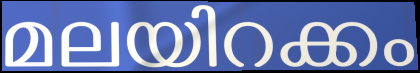
മലയിറക്കം